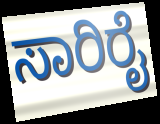
ಸಾರಿರೈ